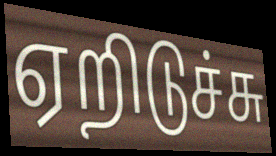
ஏறிடுச்சு